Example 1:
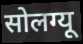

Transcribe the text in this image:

सोलग्यू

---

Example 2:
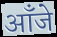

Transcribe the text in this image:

आँजे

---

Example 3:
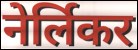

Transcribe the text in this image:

नेर्लिकर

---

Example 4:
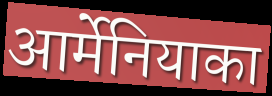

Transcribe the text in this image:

आर्मेनियाका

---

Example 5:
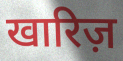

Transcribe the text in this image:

खारिज़